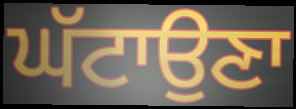
ਘੱਟਾਉਣਾ